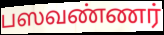
பஸவண்ணர்